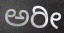
ಅರೀ